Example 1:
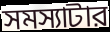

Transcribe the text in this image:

সমস্যাটার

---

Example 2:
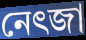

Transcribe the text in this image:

নেৎজা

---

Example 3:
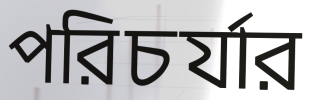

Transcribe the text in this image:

পরিচর্যার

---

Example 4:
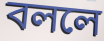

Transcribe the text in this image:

বললে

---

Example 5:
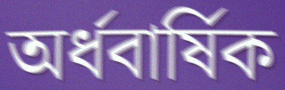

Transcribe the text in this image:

অর্ধবার্ষিক